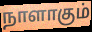
நாளாகும்